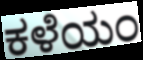
ಕಳೆಯಂ